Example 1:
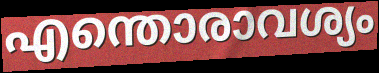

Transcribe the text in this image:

എന്തൊരാവശ്യം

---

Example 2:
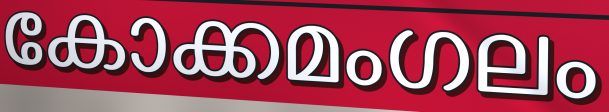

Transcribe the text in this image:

കോക്കമംഗലം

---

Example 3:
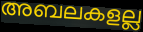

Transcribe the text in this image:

അബലകളല്ല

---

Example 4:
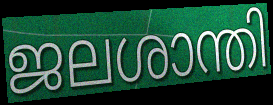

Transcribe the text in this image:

ജലശാന്തി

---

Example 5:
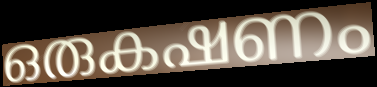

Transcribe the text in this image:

ഒരുകഷണം